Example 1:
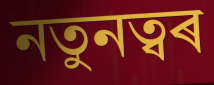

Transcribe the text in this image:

নতুনত্বৰ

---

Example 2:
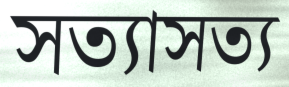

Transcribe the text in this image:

সত্যাসত্য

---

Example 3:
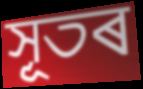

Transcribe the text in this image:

সূতৰ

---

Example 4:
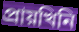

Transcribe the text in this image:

প্ৰায়খিনি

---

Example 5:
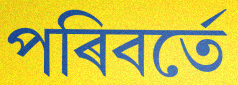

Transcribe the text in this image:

পৰিবৰ্তে